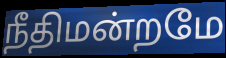
நீதிமன்றமே